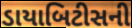
ડાયાબિટીસની